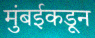
मुंबईकडून